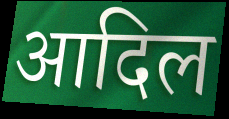
आदिल